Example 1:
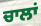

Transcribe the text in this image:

ਚਾਲਾਂ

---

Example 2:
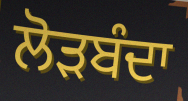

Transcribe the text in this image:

ਲੋੜਬੰਦਾ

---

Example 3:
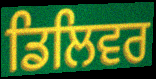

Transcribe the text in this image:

ਡਿਲਿਵਰ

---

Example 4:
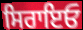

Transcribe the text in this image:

ਸਿਰਾਇਓ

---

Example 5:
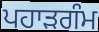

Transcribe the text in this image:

ਪਹਾੜਗੰਮ